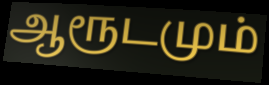
ஆரூடமும்